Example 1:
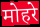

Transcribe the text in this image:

मोहरे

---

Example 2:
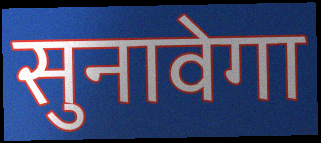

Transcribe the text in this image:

सुनावेगा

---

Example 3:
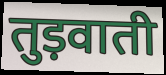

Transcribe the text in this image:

तुड़वाती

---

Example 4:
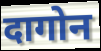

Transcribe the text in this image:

दागोन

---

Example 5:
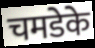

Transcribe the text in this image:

चमडेके